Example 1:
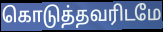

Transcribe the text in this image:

கொடுத்தவரிடமே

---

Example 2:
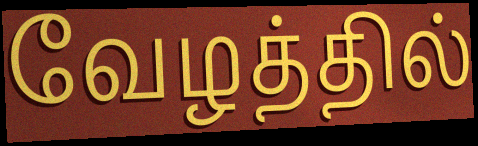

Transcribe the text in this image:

வேழத்தில்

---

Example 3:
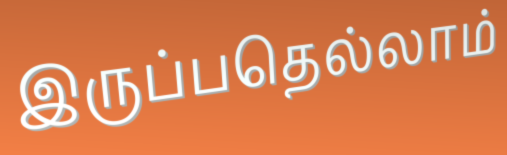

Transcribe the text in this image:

இருப்பதெல்லாம்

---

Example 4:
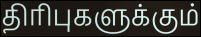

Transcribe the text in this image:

திரிபுகளுக்கும்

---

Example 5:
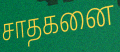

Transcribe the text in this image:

சாதகனை